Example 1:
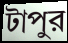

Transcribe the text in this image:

টাপুর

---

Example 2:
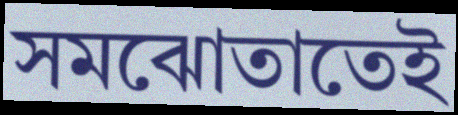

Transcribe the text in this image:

সমঝোতাতেই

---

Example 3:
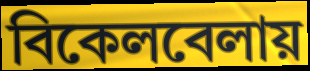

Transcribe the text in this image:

বিকেলবেলায়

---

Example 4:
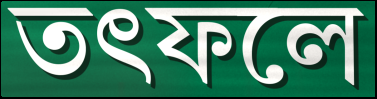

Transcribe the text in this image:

তৎফলে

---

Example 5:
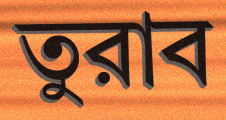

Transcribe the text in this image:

তুরাব